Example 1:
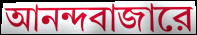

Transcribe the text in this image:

আনন্দবাজারে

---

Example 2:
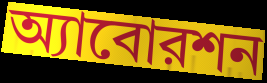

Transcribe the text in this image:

অ্যাবোরশন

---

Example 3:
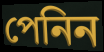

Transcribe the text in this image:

পেনিন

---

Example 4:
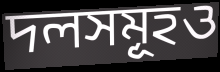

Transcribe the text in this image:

দলসমূহও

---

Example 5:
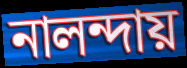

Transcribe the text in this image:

নালন্দায়